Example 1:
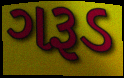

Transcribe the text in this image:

ગરૂડ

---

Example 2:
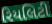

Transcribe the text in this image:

રિયલિટી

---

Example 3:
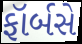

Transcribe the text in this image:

ફૉર્બસે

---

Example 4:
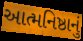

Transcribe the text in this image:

આત્મનિષ્ઠાનું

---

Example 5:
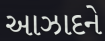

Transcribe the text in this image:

આઝાદને